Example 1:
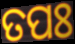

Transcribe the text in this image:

ତପଃ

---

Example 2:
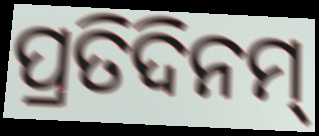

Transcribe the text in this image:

ପ୍ରତିଦିନମ୍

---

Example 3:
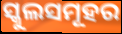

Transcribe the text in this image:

ସ୍କୁଲସମୂହର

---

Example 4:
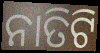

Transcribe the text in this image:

ନାତିଟି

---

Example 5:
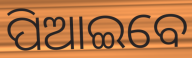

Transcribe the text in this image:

ପିଆଇବେ